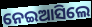
ନେଇଆସିଲେ